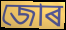
জোৰ